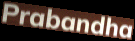
Prabandha